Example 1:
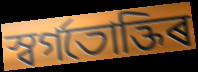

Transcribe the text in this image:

স্বৰ্গতোক্তিৰ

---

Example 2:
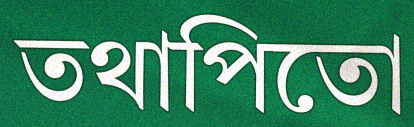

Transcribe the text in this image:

তথাপিতো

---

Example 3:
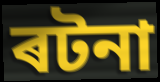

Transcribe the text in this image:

ৰটনা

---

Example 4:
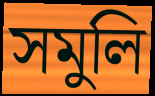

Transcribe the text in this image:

সমুলি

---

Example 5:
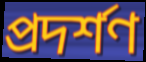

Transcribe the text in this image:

প্ৰদৰ্শণ